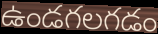
ఉండగలగడం